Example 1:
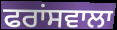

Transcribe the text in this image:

ਫਰਾਂਸਵਾਲਾ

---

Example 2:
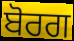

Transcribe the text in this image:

ਬੋਰਗ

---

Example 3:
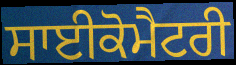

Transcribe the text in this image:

ਸਾਈਕੋਮੈਟਰੀ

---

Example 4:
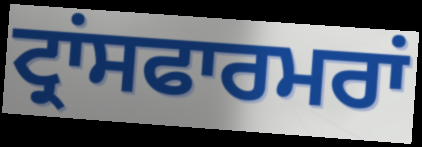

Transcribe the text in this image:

ਟ੍ਰਾਂਸਫਾਰਮਰਾਂ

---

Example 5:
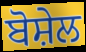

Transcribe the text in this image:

ਬੋਸ਼ੇਲ